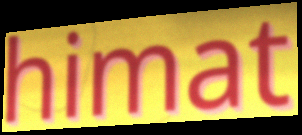
himat